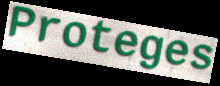
Proteges